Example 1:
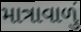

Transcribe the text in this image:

માત્રાવાળું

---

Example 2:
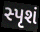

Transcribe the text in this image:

સ્પૃશં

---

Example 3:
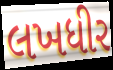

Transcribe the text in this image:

લખધીર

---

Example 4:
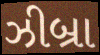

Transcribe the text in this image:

ઝીબ્રા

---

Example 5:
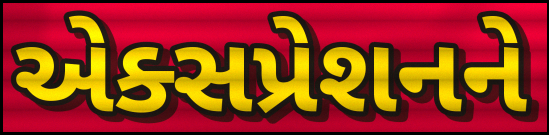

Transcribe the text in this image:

એક્સપ્રેશનને